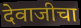
देवाजीचा